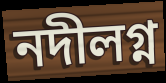
নদীলগ্ন